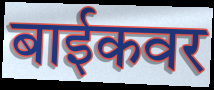
बाईकवर